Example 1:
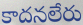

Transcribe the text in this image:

కాదనలేరు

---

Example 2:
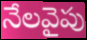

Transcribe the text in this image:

నేలవైపు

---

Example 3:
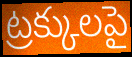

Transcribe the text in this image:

ట్రక్కులపై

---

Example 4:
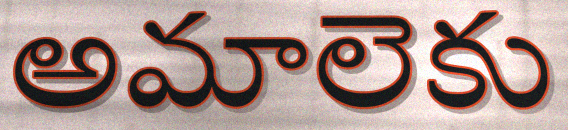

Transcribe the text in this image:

అమాలెకు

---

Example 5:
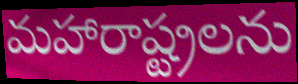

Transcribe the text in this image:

మహారాష్ట్రలను